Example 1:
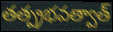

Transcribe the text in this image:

తత్ప్రభవత్వాత్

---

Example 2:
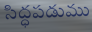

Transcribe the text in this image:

సిద్ధపడుము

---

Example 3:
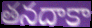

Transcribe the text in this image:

తనదాకా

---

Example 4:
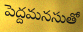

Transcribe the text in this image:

పెద్దమనసుతో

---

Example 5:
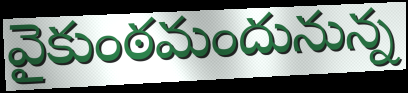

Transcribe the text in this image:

వైకుంఠమందునున్న